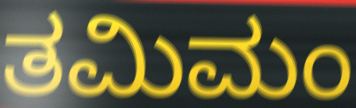
ತಮಿಮಂ